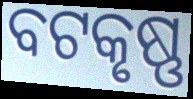
ବଟକୃଷ୍ଣ